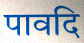
पावदि